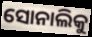
ସୋନାଲିକୁ